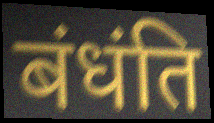
बंधंति